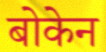
बोकेन